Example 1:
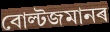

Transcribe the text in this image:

বোল্টজমানৰ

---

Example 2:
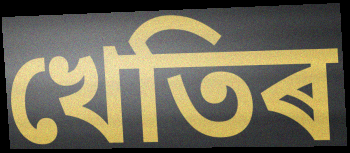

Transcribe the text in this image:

খেতিৰ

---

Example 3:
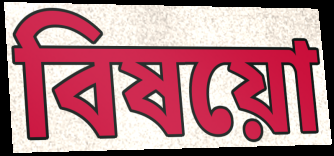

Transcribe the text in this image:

বিষয়ো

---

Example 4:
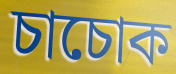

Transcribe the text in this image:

চাচোক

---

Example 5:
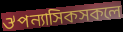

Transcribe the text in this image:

ঔপন্যাসিকসকলে